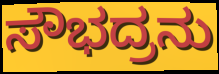
ಸೌಭದ್ರನು